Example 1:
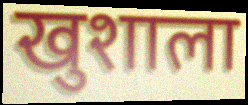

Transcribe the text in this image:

खुशाला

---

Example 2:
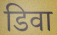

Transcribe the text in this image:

डिवा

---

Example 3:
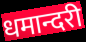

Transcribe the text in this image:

धमान्दरी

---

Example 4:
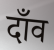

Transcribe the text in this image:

दाँव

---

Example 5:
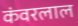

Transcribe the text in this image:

कंवरलाल